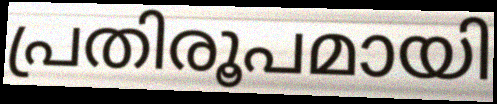
പ്രതിരൂപമായി